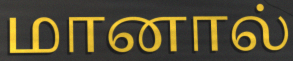
மானால்